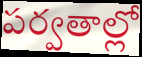
పర్వతాల్లో